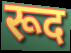
रूद